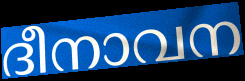
ദീനാവന